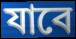
যাবে